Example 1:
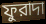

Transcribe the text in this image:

ফুরাদা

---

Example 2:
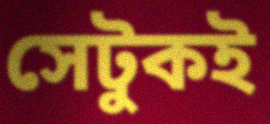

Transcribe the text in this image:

সেটুকই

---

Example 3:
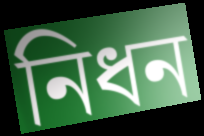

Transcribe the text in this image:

নিধন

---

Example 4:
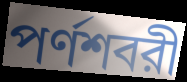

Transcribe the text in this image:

পর্ণশবরী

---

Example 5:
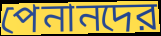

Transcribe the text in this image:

পেনানদের